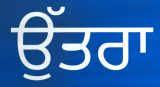
ਉੱਤਰਾ